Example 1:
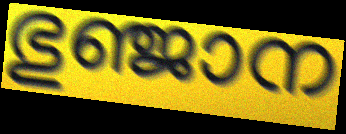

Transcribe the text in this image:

ഭുഞ്ജാന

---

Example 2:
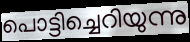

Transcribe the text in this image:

പൊട്ടിച്ചെറിയുന്നു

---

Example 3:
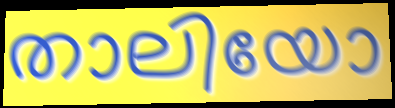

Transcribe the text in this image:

താലിയോ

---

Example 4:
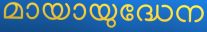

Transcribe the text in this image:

മായായുദ്ധേന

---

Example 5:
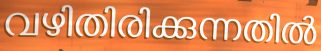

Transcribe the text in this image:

വഴിതിരിക്കുന്നതിൽ